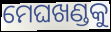
ମେଘଖଣ୍ଡକୁ